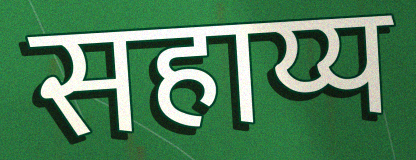
सहाय्य